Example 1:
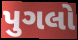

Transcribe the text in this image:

પુગલો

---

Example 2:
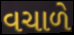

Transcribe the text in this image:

વચાળે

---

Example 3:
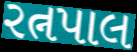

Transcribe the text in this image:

રત્નપાલ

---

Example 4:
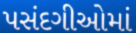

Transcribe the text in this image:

પસંદગીઓમાં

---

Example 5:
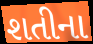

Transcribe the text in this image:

શતીના